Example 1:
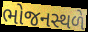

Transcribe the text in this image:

ભોજનસ્થળે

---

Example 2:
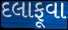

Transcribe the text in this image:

દલાફૂવા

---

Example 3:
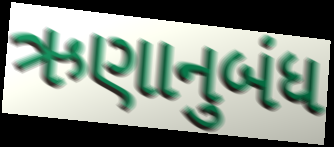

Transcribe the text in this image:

ઋણાનુબંધ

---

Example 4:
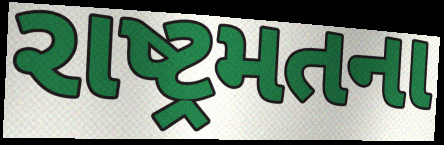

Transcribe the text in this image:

રાષ્ટ્રમતના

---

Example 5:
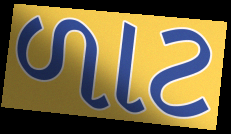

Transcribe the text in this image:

ળાટ